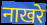
नाखरे